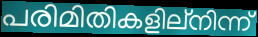
പരിമിതികളില്നിന്ന്